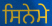
ਸਿਨੇਮੇ